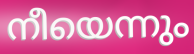
നീയെന്നും